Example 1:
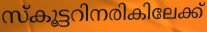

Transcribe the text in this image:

സ്കൂട്ടറിനരികിലേക്ക്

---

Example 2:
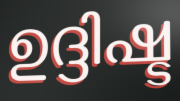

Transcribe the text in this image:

ഉദ്ദിഷ്ട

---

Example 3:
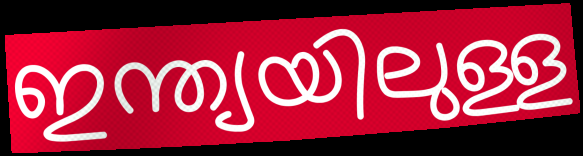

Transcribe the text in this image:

ഇന്ത്യയിലുള്ള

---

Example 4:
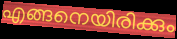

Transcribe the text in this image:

എങ്ങനെയിരിക്കും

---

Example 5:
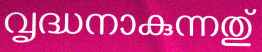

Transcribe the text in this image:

വൃദ്ധനാകുന്നതു്